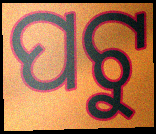
ପଟୁ